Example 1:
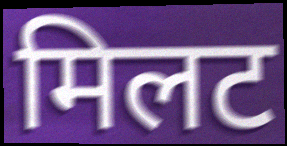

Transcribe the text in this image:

मिलट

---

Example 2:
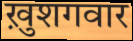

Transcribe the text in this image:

ख़ुशगवार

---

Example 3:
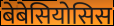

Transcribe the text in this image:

बेबेसियोसिस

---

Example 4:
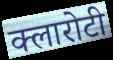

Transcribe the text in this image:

क्लारोटी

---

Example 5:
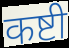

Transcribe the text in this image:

कष्टी